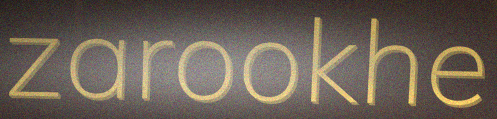
zarookhe